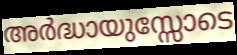
അർദ്ധായുസ്സോടെ